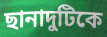
ছানাদুটিকে